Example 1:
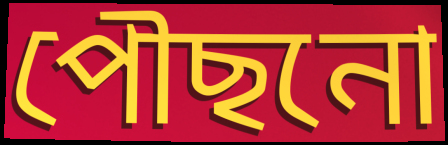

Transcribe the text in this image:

পৌছনো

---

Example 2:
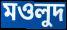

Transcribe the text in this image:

মওলুদ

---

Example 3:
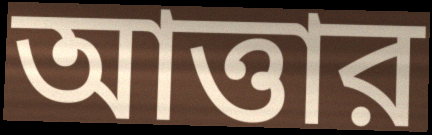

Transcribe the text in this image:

আত্তার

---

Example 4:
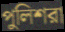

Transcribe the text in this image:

পুলিশরা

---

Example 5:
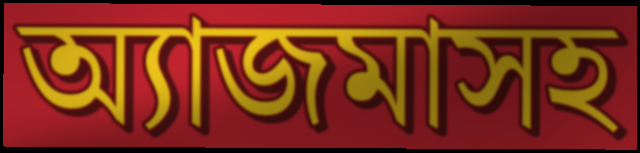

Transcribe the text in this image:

অ্যাজমাসহ